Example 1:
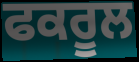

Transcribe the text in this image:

ਫਕਰੂਲ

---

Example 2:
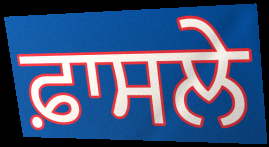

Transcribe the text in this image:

ਫ਼ਾਸਲੇ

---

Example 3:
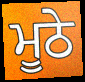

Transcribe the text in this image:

ਮੂਠੇ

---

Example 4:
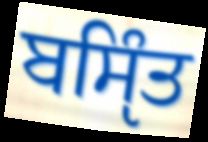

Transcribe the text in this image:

ਬਸੵਿੰਤ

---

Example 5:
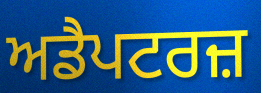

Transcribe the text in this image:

ਅਡੈਪਟਰਜ਼